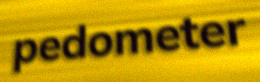
pedometer